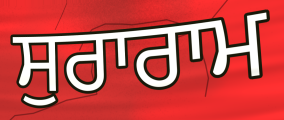
ਸੁਰਾਰਾਮ